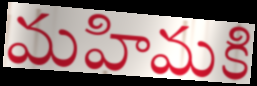
మహిమకి